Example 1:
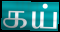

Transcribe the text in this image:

கய்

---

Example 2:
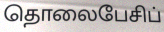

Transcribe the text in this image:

தொலைபேசிப்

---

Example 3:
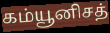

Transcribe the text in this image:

கம்யூனிசத்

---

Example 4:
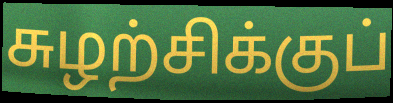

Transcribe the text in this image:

சுழற்சிக்குப்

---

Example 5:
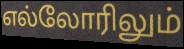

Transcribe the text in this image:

எல்லோரிலும்